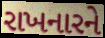
રાખનારને